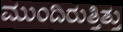
ಮುಂದಿರುತ್ತಿತ್ತು